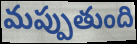
మప్పుతుంది